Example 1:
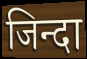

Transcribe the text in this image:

जिन्दा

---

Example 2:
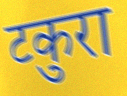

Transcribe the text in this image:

टकुरा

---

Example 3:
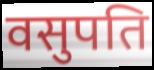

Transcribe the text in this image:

वसुपति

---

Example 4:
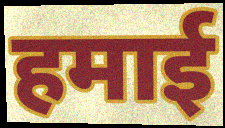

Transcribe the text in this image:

हमाई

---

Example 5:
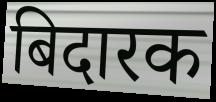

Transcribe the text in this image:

बिदारक